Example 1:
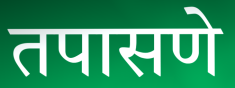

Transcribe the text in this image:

तपासणे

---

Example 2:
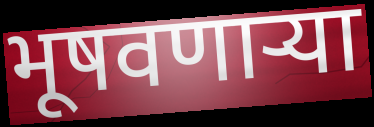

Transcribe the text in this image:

भूषवणाऱ्या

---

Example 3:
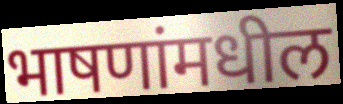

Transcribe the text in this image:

भाषणांमधील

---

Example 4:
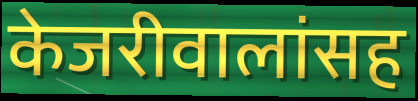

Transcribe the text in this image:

केजरीवालांसह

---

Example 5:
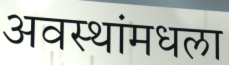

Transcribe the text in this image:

अवस्थांमधला